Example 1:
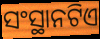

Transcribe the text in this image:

ସଂସ୍ଥାନଟିଏ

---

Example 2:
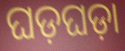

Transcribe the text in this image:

ଘଡ଼ଘଡ଼ା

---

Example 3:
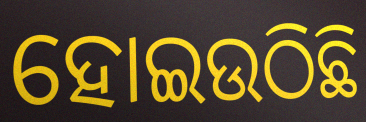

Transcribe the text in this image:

ହୋଇଉଠିଛି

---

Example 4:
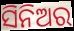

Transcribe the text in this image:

ସିନିଅର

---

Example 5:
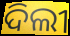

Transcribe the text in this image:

ଦିଲୀ